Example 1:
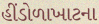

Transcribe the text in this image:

હીંડોળાખાટના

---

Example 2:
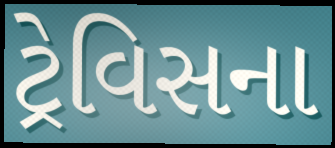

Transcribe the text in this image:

ટ્રેવિસના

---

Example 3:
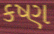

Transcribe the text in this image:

કષ્ણ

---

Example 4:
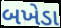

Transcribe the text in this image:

બખેડા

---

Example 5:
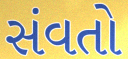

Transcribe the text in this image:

સંવતો